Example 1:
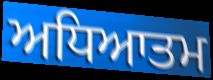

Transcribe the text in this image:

ਅਧਿਆਤਮ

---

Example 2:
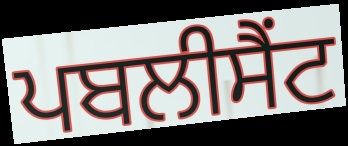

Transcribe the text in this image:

ਪਬਲੀਸੈਂਟ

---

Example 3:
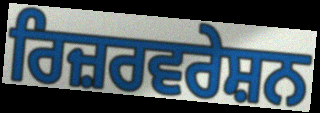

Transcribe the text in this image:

ਰਿਜ਼ਰਵਰੇਸ਼ਨ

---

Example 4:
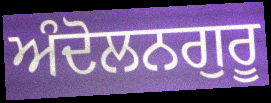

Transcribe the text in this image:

ਅੰਦੋਲਨਗੁਰੂ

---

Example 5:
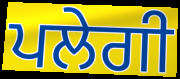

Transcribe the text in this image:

ਪਲੇਗੀ